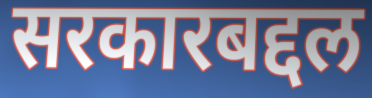
सरकारबद्दल